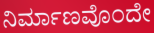
ನಿರ್ಮಾಣವೊಂದೇ